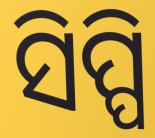
ସିପ୍ପି